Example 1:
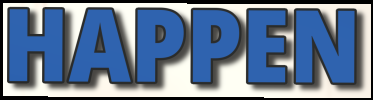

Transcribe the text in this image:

HAPPEN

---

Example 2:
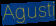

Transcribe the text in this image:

Agusti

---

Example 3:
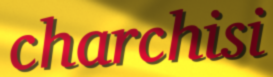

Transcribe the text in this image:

charchisi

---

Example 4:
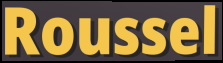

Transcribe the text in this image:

Roussel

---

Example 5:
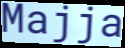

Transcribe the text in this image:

Majja